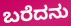
ಬರೆದನು